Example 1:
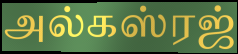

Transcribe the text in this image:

அல்கஸ்ரஜ்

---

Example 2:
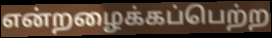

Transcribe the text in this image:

என்றழைக்கப்பெற்ற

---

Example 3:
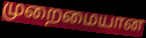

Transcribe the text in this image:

முறைமையான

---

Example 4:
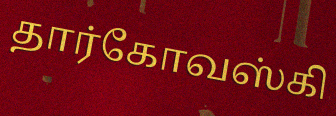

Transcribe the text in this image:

தார்கோவஸ்கி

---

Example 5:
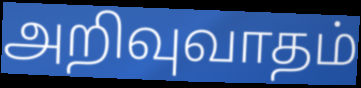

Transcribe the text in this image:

அறிவுவாதம்